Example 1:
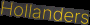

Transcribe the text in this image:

Hollanders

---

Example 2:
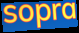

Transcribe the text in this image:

sopra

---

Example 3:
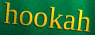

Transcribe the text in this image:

hookah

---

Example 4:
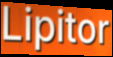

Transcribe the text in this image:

Lipitor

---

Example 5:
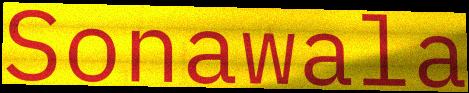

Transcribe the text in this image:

Sonawala